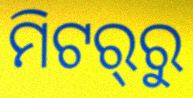
ମିଟର୍‍ରୁ